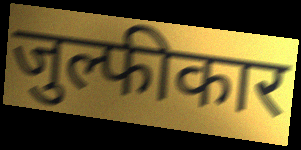
जुल्फीकार